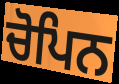
ਚੋਪਿਨ